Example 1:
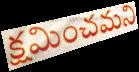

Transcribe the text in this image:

క్షమించమని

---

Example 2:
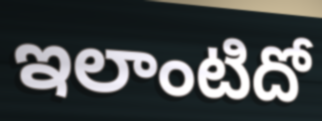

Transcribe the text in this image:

ఇలాంటిదో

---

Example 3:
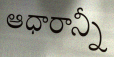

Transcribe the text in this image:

ఆధారాన్నీ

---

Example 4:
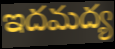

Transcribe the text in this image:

ఇదమద్య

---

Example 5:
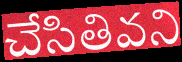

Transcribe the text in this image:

చేసితివని